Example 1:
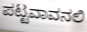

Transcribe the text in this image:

ಪಟ್ಟವಾವನಲಿ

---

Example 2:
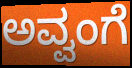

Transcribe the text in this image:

ಅವ್ವಂಗೆ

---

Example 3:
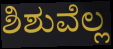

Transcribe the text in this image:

ಶಿಶುವೆಲ್ಲ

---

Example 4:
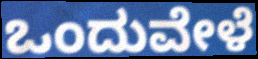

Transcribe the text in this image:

ಒಂದುವೇಳೆ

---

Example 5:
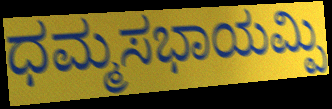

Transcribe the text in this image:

ಧಮ್ಮಸಭಾಯಮ್ಪಿ